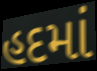
હદમાં